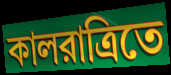
কালরাত্রিতে